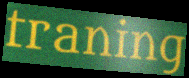
traning